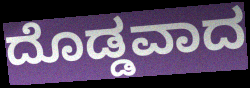
ದೊಡ್ಡವಾದ